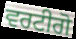
ਵਰਟੀਗੋ